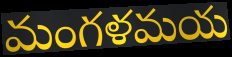
మంగళమయ